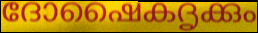
ദോഷൈകദൃക്കും